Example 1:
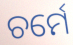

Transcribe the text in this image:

ଚର୍ମେ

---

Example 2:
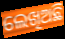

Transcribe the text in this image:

ଲେଖିଅଛି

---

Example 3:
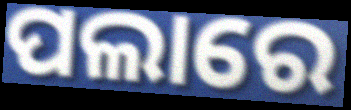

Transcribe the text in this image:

ପଲାରେ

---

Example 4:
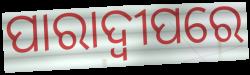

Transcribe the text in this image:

ପାରାଦ୍ୱୀପରେ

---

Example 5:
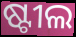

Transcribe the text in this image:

ଷ୍ଟୀଲ